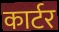
कार्टर